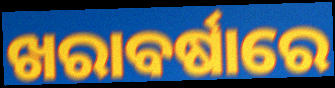
ଖରାବର୍ଷାରେ